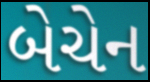
બેચેન